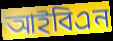
আইবিএন